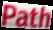
Path